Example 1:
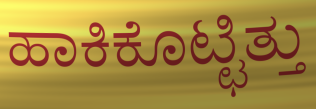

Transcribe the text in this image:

ಹಾಕಿಕೊಟ್ಟಿತ್ತು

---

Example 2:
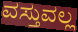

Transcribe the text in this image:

ವಸ್ತುವಲ್ಲ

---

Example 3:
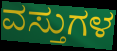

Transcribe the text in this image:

ವಸ್ತುಗಳ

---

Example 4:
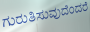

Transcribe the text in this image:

ಗುರುತಿಸುವುದೆಂದರೆ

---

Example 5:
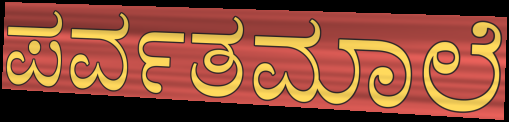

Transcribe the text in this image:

ಪರ್ವತಮಾಲೆ